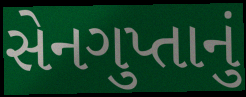
સેનગુપ્‍તાનું